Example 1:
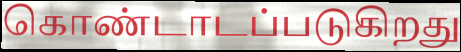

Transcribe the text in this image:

கொண்டாடப்படுகிறது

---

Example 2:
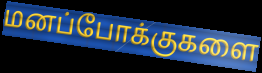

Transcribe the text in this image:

மனப்போக்குகளை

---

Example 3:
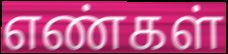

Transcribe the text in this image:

எண்கள்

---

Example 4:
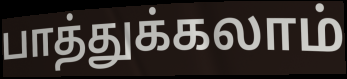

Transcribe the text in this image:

பாத்துக்கலாம்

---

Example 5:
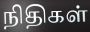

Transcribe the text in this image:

நிதிகள்